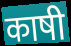
काषी